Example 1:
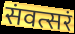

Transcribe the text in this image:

संवत्सरं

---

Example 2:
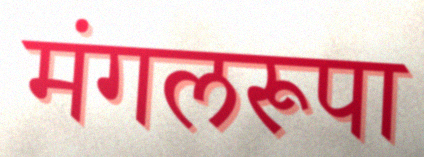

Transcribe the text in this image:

मंगलरूपा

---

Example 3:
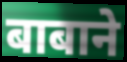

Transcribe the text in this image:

बाबाने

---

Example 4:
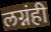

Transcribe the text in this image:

लग्नंही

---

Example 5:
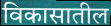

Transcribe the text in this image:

विकासातील